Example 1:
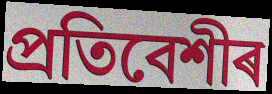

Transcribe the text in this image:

প্ৰতিবেশীৰ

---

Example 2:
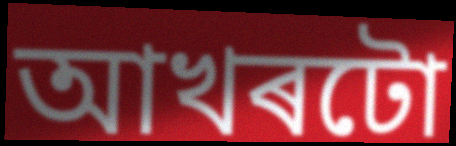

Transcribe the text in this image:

আখৰটো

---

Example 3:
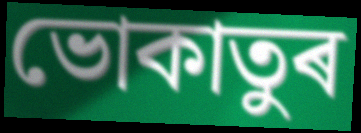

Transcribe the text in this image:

ভোকাতুৰ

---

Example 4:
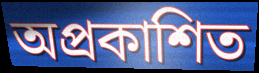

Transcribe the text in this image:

অপ্ৰকাশিত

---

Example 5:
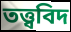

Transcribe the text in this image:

তত্ত্ববিদ